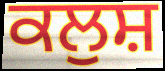
ਕਲੁਸ਼